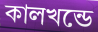
কালখন্ডে